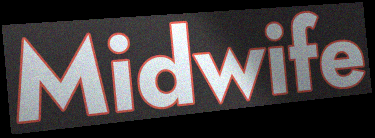
Midwife